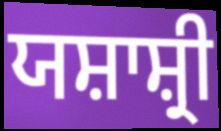
ਯਸ਼ਾਸ਼੍ਰੀ